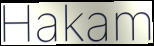
Hakam